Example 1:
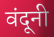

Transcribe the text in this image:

वंदूनी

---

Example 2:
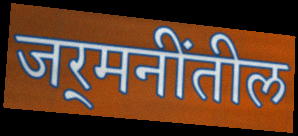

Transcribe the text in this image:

जर्मनींतील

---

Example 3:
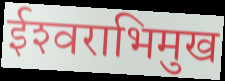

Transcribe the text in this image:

ईश्वराभिमुख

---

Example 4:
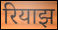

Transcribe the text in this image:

रियाझ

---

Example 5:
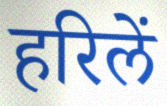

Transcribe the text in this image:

हरिलें